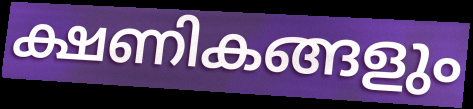
ക്ഷണികങ്ങളും